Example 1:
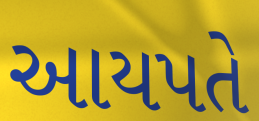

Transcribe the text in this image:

આયપતે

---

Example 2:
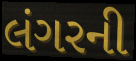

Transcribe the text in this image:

લંગરની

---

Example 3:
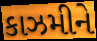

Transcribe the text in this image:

કાઝમીને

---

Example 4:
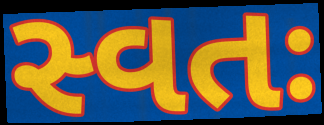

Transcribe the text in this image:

સ્વતઃ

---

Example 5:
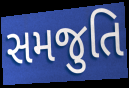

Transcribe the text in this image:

સમજુતિ